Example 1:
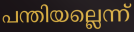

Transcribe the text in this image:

പന്തിയല്ലെന്ന്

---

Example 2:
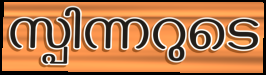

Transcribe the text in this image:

സ്പിന്നറുടെ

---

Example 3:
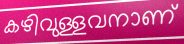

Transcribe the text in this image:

കഴിവുള്ളവനാണ്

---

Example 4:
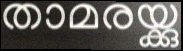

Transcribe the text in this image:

താമരയ്ക്കു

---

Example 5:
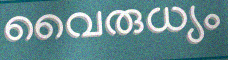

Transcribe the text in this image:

വൈരുധ്യം